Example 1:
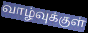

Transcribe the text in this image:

வாழ்வுக்குள்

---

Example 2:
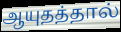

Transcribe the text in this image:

ஆயுதத்தால்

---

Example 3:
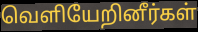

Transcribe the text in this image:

வெளியேறினீர்கள்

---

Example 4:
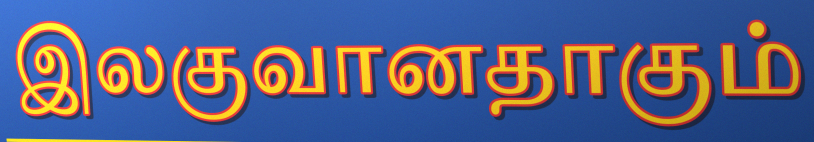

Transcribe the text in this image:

இலகுவானதாகும்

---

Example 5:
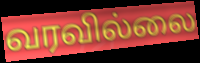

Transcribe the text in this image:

வரவில்லை